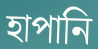
হাপানি